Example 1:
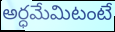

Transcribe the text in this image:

అర్ధమేమిటంటే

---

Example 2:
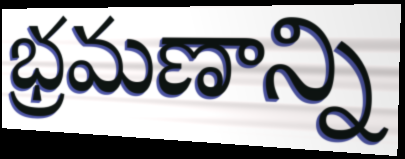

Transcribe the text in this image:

భ్రమణాన్ని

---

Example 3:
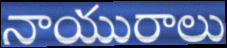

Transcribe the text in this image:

నాయురాలు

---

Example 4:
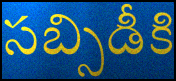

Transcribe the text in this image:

సబ్సిడీకి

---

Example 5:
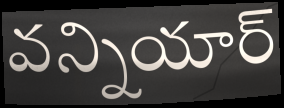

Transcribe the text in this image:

వన్నియార్